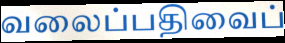
வலைப்பதிவைப்